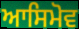
ਆਸਿਮੋਵ